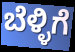
ಬೆಳ್ಳಿಗೆ